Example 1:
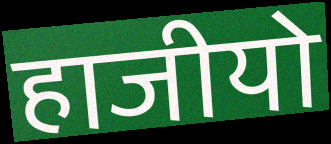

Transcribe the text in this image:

हाजीयो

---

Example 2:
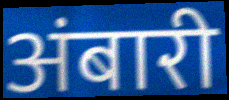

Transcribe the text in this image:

अंबारी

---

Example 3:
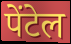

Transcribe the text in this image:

पेंटेल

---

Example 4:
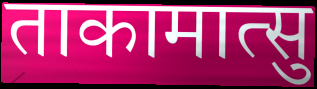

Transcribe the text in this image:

ताकामात्सु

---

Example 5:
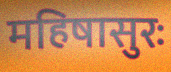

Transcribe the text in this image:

महिषासुरः